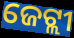
ଜେଟ୍ଲୀ